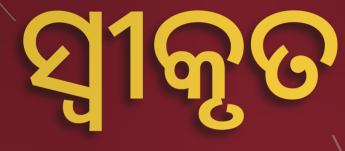
ସ୍ଵୀକୃତ